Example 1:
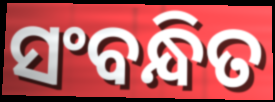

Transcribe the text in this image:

ସଂବନ୍ଧିତ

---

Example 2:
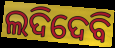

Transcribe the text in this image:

ଲଦିଦେବି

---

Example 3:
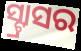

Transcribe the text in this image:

ସ୍ଟ୍ରାସର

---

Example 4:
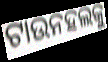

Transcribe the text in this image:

ଟାଉନହଲକୁ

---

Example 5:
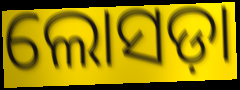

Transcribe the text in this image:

ଲୋସଡ଼ା